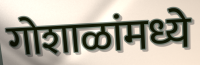
गोशाळांमध्ये